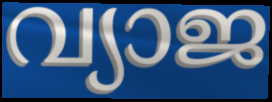
വ്യാജ